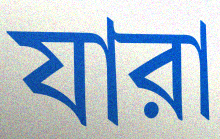
যারা